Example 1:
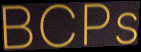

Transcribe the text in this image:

BCPs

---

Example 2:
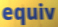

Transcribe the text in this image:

equiv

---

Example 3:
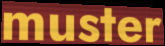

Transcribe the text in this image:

muster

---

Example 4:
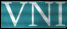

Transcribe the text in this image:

VNI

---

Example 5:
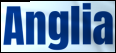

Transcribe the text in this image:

Anglia